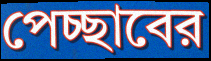
পেচ্ছাবের